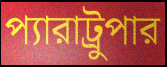
প্যারাট্রুপার